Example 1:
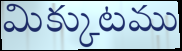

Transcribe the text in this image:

మిక్కుటము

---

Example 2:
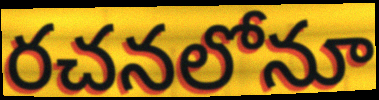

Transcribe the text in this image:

రచనలోనూ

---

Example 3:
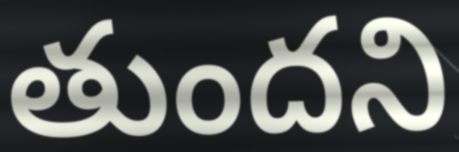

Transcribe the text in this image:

తుందని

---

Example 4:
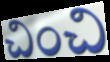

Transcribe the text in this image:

చించి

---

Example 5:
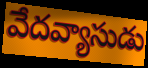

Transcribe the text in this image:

వేదవ్యాసుడు